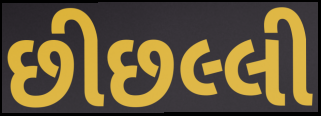
છીછલ્લી